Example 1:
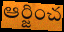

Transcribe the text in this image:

ఆర్జించ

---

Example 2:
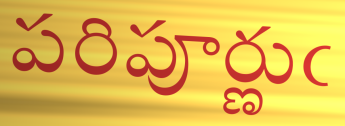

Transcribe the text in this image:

పరిపూర్ణుఁ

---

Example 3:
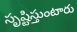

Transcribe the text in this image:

సృష్టిస్తుంటారు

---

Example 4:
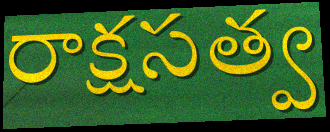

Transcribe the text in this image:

రాక్షసత్వ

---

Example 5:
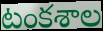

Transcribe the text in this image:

టంకశాల